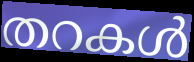
തറകൾ